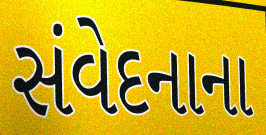
સંવેદનાના